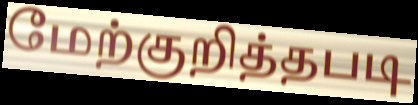
மேற்குறித்தபடி